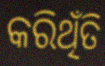
କରିଥିଁତି